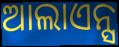
ଆଲାଏନ୍ସ